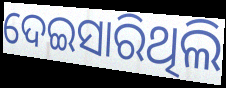
ଦେଇସାରିଥିଲି